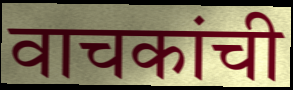
वाचकांची